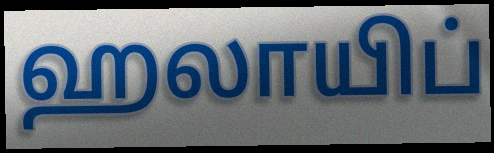
ஹலாயிப்